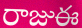
రాజుఈ